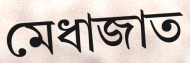
মেধাজাত